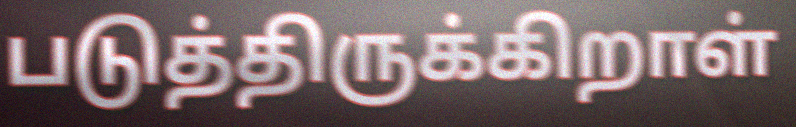
படுத்திருக்கிறாள்